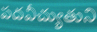
పదవీచ్యుతుని